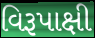
વિરૂપાક્ષી